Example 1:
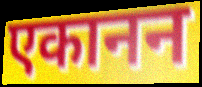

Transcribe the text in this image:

एकानन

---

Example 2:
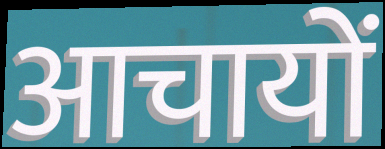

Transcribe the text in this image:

आचायों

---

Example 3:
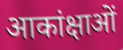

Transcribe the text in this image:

आकांक्षाओं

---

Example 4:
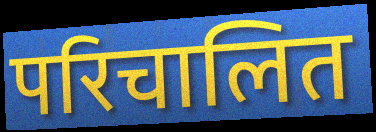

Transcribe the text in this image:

परिचालित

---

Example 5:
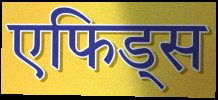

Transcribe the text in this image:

एफिड्स